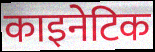
काइनेटिक